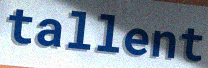
tallent